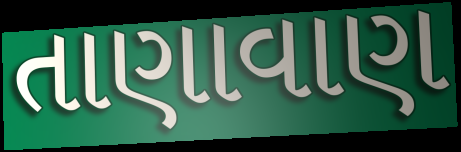
તાણાવાણ